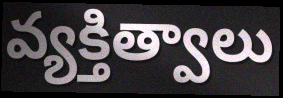
వ్యక్తిత్వాలు